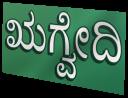
ಋಗ್ವೇದಿ